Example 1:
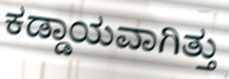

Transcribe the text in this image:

ಕಡ್ಡಾಯವಾಗಿತ್ತು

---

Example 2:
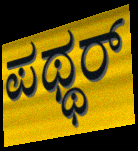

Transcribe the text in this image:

ಪಥ್ಥರ್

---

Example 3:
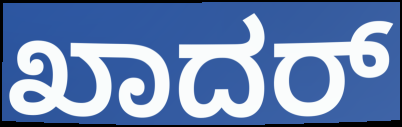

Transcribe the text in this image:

ಖಾದರ್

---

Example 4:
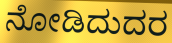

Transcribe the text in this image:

ನೋಡಿದುದರ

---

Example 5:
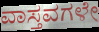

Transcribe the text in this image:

ವಾಸ್ತವಗಳೇ